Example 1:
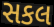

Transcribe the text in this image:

સકલ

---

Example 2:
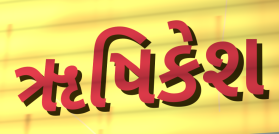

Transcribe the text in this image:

ૠષિકેશ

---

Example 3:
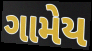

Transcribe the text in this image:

ગામેય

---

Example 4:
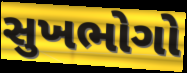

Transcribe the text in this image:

સુખભોગો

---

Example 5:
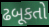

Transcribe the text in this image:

ઢબૂકતો